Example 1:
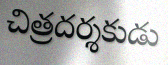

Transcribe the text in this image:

చిత్రదర్శకుడు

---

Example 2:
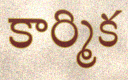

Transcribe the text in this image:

కార్మిక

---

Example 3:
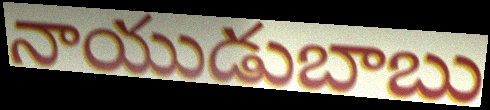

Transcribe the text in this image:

నాయుడుబాబు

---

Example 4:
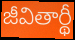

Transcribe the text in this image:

జీవితార్థీ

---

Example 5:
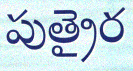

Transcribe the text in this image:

పుత్రైర